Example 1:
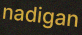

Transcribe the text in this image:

nadigan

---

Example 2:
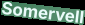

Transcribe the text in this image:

Somervell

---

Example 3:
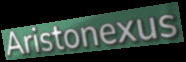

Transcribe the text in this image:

Aristonexus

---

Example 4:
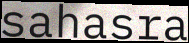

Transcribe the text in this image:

sahasra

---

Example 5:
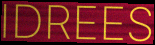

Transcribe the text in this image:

IDREES